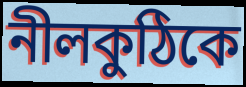
নীলকুঠিকে